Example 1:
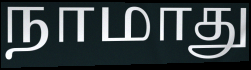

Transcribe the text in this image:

நாமாது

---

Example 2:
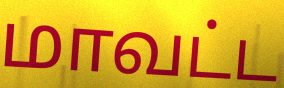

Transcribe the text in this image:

மாவட்ட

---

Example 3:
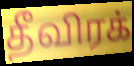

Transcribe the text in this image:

தீவிரக்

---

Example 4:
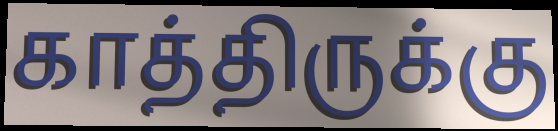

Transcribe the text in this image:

காத்திருக்கு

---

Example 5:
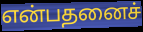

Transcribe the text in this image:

என்பதனைச்